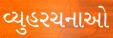
વ્યુહરચનાઓ